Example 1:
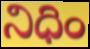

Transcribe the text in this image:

నిధిం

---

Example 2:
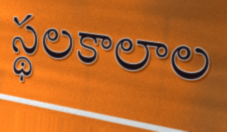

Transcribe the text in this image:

స్థలకాలాల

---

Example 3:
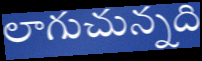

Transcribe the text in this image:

లాగుచున్నది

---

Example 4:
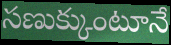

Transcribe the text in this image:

సణుక్కుంటూనే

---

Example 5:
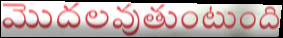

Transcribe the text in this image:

మొదలవుతుంటుంది